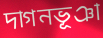
দাগনভূঞা